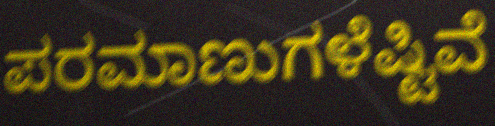
ಪರಮಾಣುಗಳೆಷ್ಟಿವೆ